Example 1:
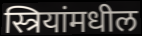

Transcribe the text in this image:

स्त्रियांमधील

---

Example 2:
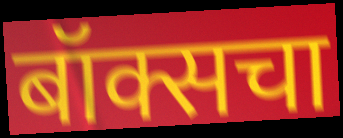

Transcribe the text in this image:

बॉक्सचा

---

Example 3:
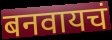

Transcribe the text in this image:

बनवायचं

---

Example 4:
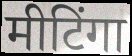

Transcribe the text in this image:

मीटिंगा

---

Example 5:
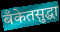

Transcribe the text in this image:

बँकेतसुद्धा